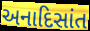
અનાદિસાંત